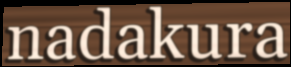
nadakura